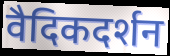
वैदिकदर्शन